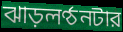
ঝাড়লণ্ঠনটার